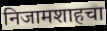
निजामशाहचा